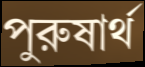
পুরুষার্থ